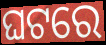
ଘଟରେ